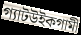
গ্যাটউইকগামী